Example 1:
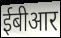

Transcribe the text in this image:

ईबीआर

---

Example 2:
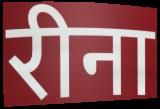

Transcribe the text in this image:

रीना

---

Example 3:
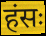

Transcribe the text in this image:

हंसः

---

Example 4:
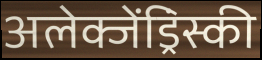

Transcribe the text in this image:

अलेक्जेंड्रिंस्की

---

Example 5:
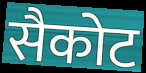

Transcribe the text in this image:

सैकोट